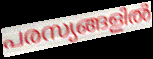
പരസ്യങ്ങളിൽ